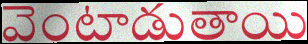
వెంటాడుతాయి